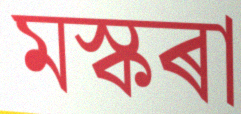
মস্কৰা